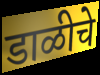
डाळीचे